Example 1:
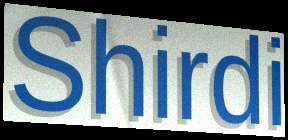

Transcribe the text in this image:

Shirdi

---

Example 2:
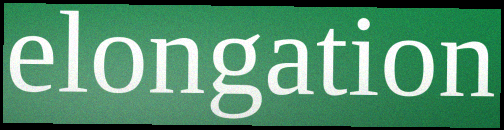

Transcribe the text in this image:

elongation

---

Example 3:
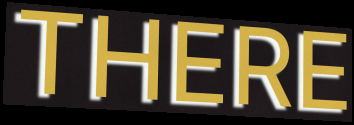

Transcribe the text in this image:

THERE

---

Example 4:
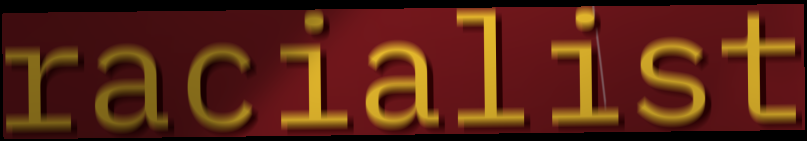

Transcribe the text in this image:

racialist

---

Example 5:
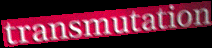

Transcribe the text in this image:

transmutation